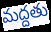
మద్దతు